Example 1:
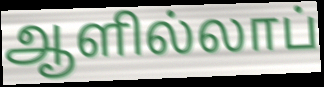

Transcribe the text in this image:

ஆளில்லாப்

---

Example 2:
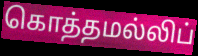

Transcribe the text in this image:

கொத்தமல்லிப்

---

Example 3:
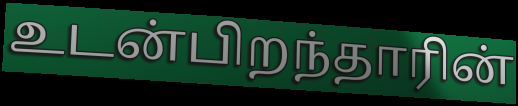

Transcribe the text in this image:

உடன்பிறந்தாரின்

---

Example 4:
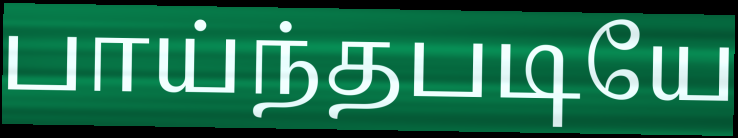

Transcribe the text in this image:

பாய்ந்தபடியே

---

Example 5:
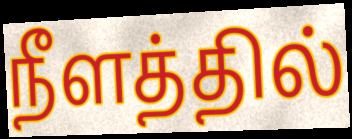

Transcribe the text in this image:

நீளத்தில்